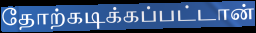
தோற்கடிக்கப்பட்டான்